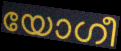
യോഗീ